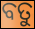
ବତୁ